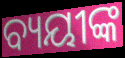
ବ୍ୟୟୀଙ୍କ